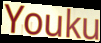
Youku